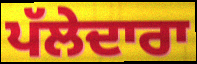
ਪੱਲੇਦਾਰਾ